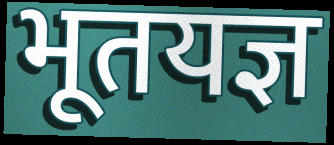
भूतयज्ञ